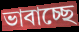
ভাবাচ্ছে